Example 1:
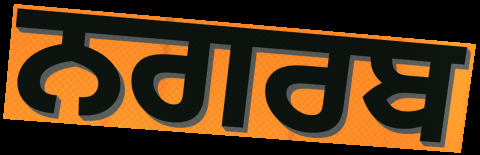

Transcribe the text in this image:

ਨਗਰਬ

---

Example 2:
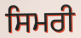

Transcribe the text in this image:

ਸਿਮਰੀ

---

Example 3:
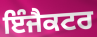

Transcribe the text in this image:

ਇੰਜੈਕਟਰ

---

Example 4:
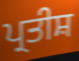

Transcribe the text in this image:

ਪ੍ਰਤੀਸ਼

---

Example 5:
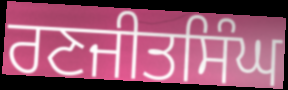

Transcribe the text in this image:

ਰਣਜੀਤਸਿੰਘ